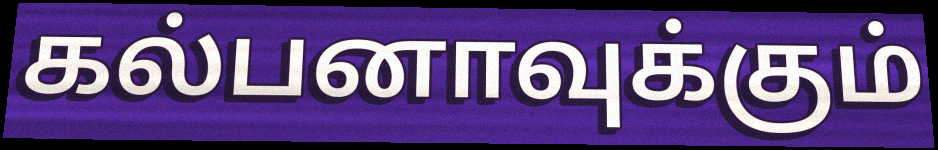
கல்பனாவுக்கும்